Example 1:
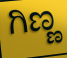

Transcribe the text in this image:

ಗಿಣ್ಣ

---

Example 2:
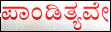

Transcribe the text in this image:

ಪಾಂಡಿತ್ಯವೇ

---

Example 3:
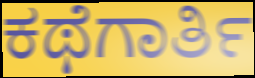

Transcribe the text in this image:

ಕಥೆಗಾರ್ತಿ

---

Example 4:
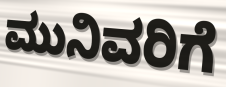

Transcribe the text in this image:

ಮುನಿವರಿಗೆ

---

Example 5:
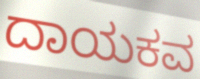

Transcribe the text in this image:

ದಾಯಕವ